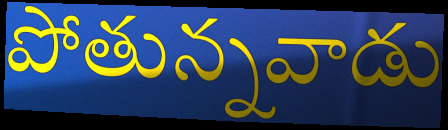
పోతున్నవాడు